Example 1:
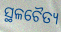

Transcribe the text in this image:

ସ୍ଥଳଚୈତ୍ୟ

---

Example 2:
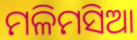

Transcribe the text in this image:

ମଳିମସିଆ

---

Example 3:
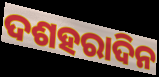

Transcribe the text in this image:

ଦଶହରାଦିନ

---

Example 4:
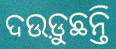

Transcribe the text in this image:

ଦଉଡ଼ୁଛନ୍ତି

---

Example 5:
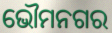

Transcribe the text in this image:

ଭୌମନଗର